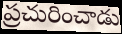
ప్రచురించాడు